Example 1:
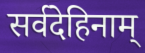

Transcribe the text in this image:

सर्वदेहिनाम्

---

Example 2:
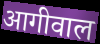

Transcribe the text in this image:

आगीवाल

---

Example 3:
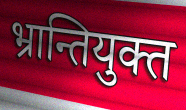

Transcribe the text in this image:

भ्रान्तियुक्त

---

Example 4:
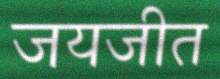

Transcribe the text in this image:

जयजीत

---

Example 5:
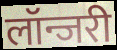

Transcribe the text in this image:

लॉन्जरी